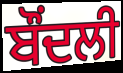
ਬੌਂਦਲੀ